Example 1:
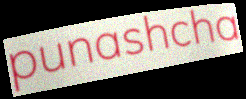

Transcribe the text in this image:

punashcha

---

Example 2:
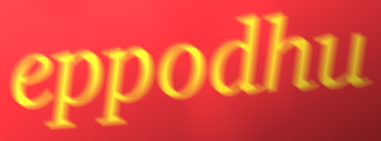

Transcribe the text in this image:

eppodhu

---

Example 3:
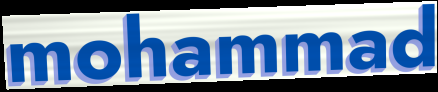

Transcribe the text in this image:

mohammad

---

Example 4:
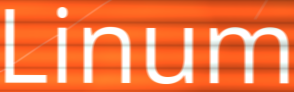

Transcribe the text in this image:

Linum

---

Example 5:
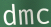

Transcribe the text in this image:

dmc